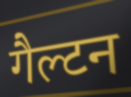
गैल्टन